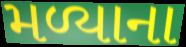
મળ્યાના